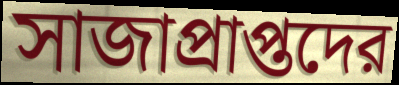
সাজাপ্রাপ্তদের